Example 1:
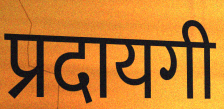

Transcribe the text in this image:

प्रदायगी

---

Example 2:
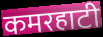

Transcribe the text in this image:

कमरहाटी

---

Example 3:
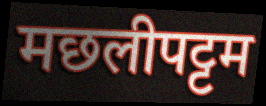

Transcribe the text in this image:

मछलीपट्टम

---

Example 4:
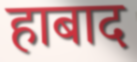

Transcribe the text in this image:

हाबाद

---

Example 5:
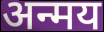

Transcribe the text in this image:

अन्मय